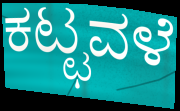
ಕಟ್ಟವಳೆ